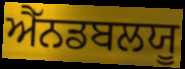
ਐੱਨਡਬਲਯੂ